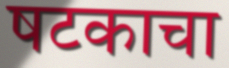
षटकाचा